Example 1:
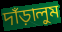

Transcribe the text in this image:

দাঁড়ালুম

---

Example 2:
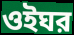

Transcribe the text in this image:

ওইঘর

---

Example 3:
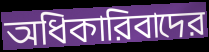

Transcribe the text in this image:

অধিকারিবাদের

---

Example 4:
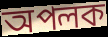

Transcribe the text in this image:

অপলক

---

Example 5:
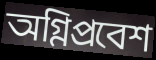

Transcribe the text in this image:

অগ্নিপ্রবেশ